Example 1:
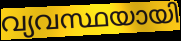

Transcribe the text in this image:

വ്യവസ്ഥയായി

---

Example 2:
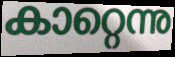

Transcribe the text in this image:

കാറ്റെന്നു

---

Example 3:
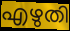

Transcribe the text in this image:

എഴുതി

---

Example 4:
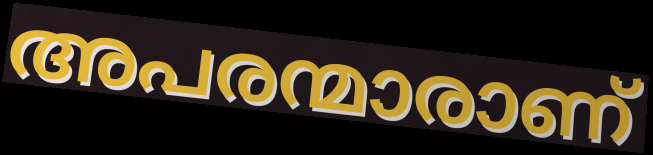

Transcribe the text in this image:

അപരന്മാരാണ്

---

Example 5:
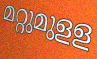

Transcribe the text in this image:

മറ്റുമുളള